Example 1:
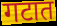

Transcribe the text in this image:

गटात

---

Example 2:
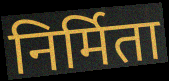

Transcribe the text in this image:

निर्मिता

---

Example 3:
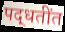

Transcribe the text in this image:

पद्धतींत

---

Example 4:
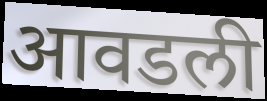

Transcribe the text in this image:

आवडली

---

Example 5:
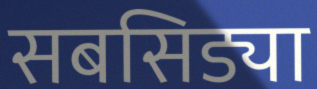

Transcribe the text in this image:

सबसिड्या